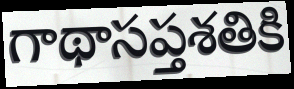
గాథాసప్తశతికి